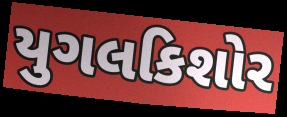
યુગલકિશોર